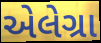
એલેગ્રા